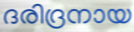
ദരിദ്രനായ